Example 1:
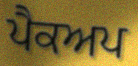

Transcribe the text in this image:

ਪੈਕਅਪ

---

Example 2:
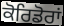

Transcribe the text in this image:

ਕੋਰਿਡੋਰਾਂ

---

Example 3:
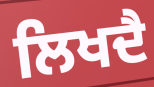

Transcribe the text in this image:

ਲਿਖਦੈ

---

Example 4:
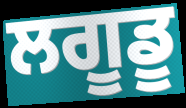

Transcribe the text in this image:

ਲਗੂਡੂ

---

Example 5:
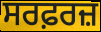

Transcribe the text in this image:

ਸਰਫ਼ਰਜ਼